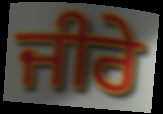
ਜੀਰੇ